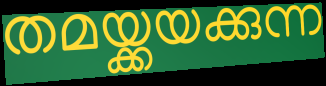
തമയ്ക്കയക്കുന്ന